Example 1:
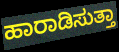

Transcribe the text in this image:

ಹಾರಾಡಿಸುತ್ತಾ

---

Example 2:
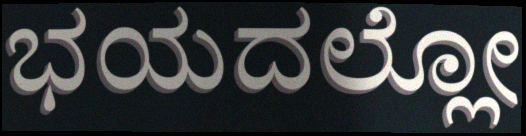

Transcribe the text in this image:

ಭಯದಲ್ಲೋ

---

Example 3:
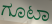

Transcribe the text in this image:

ಗೂಟಾ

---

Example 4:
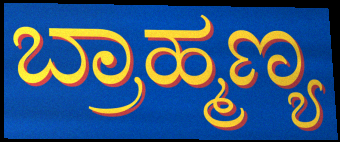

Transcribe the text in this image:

ಬ್ರಾಹ್ಮಣ್ಯ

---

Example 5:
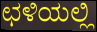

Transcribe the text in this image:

ಛಳಿಯಲ್ಲಿ